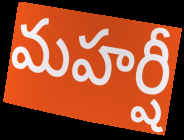
మహర్షీ